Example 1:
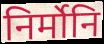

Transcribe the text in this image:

निर्मोनि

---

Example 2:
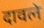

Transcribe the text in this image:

दावले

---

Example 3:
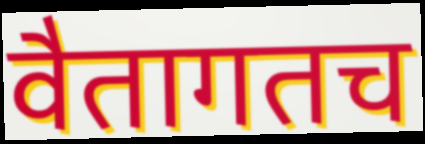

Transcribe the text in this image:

वैतागतच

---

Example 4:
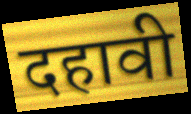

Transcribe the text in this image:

दहावी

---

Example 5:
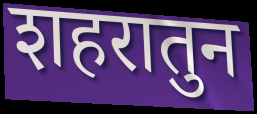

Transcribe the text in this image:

शहरातुन